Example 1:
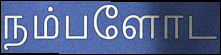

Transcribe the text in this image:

நம்பளோட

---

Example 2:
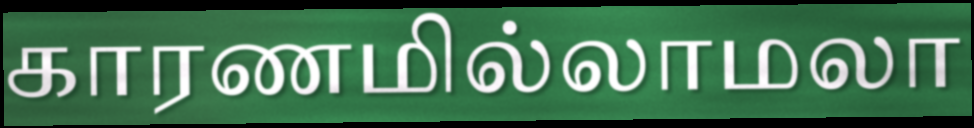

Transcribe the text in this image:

காரணமில்லாமலா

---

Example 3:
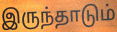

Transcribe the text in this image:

இருந்தாடும்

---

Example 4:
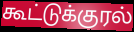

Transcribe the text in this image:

கூட்டுக்குரல்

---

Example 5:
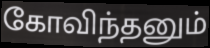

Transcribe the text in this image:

கோவிந்தனும்